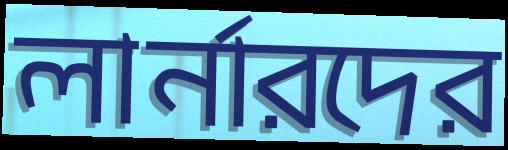
লার্নারদের